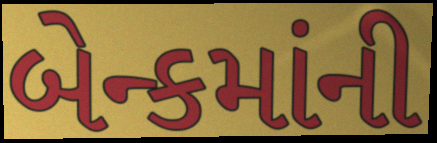
બેન્કમાંની